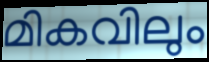
മികവിലും